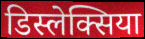
डिस्लेक्सिया